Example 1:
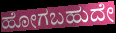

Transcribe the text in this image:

ಹೋಗಬಹುದೇ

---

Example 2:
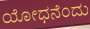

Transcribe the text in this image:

ಯೋಧನೆಂದು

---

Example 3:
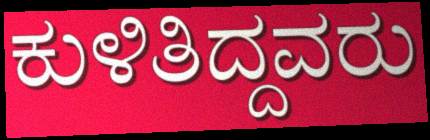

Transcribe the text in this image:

ಕುಳಿತಿದ್ದವರು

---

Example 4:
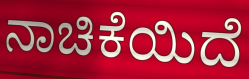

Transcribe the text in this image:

ನಾಚಿಕೆಯಿದೆ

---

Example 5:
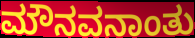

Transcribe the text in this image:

ಮೌನವನಾಂತು